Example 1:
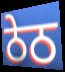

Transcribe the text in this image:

ਠੇਠ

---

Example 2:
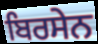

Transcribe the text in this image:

ਬਿਰਸੇਨ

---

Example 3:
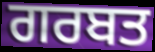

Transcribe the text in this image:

ਗਰਬਤ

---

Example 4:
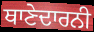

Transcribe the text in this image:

ਥਾਣੇਦਾਰਨੀ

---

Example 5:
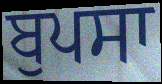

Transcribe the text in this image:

ਬੁਪਸਾ